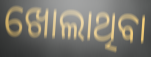
ଖୋଲାଥିବା